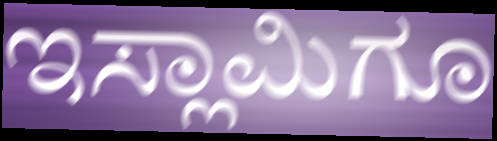
ಇಸ್ಲಾಮಿಗೂ